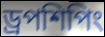
ড্রপশিপিং